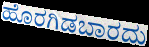
ಹೊರಗಿಡಬಾರದು